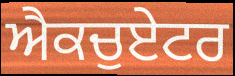
ਐਕਚੁਏਟਰ